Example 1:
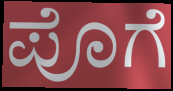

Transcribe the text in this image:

ಪೊಗೆ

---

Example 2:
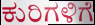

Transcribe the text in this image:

ಕುರಿಗಳಿಗೆ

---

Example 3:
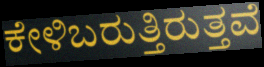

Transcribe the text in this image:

ಕೇಳಿಬರುತ್ತಿರುತ್ತವೆ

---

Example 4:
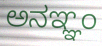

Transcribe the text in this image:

ಅನಞ್ಞಂ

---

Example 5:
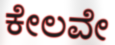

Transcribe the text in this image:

ಕೇಲವೇ